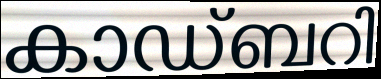
കാഡ്ബറി